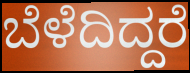
ಬೆಳೆದಿದ್ದರೆ